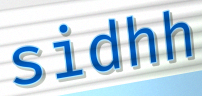
sidhh